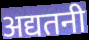
अद्यतनी